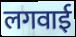
लगवाई